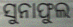
ସୁନାଫୁଲ